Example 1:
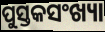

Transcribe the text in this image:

ପୁସ୍ତକସଂଖ୍ୟା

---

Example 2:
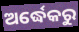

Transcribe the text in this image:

ଅର୍ଦ୍ଧେକରୁ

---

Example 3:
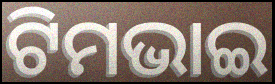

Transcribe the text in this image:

ଟିମଭାଇ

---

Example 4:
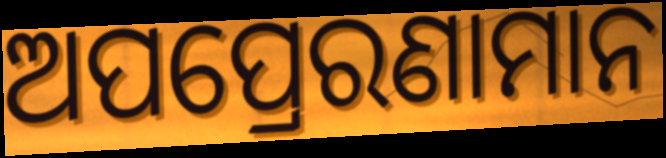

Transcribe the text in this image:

ଅପପ୍ରେରଣାମାନ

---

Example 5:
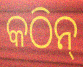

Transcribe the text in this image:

କଠିନ୍